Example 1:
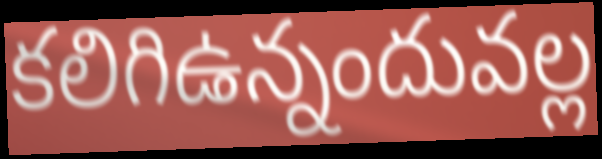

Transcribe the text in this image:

కలిగిఉన్నందువల్ల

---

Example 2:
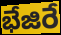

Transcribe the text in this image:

భేజిరే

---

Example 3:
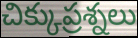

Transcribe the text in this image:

చిక్కుప్రశ్నలు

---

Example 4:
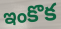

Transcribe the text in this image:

ఇంకొక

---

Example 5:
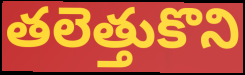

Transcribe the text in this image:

తలెత్తుకొని